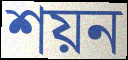
শয়ন